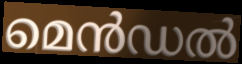
മെൻഡൽ